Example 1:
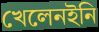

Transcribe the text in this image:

খেলেনইনি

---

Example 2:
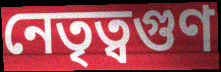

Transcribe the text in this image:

নেতৃত্বগুণ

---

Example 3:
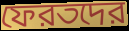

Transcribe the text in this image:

ফেরতদের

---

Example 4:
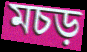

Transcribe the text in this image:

মচড়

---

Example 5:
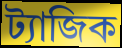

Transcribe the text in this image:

ট্যাজিক